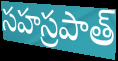
సహస్రపాత్